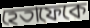
হেতাফেকে